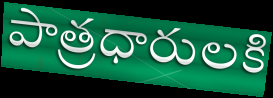
పాత్రధారులకి